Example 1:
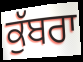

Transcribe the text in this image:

ਕੁੱਬਰਾ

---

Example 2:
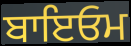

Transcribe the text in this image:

ਬਾਇਓਮ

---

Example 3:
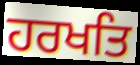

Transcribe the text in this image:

ਹਰਖਤਿ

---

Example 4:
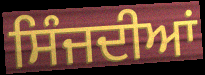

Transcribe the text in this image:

ਸਿੰਜਦੀਆਂ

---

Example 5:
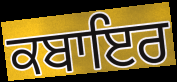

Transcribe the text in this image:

ਕਬਾਇਰ